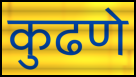
कुढणे